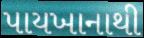
પાયખાનાથી